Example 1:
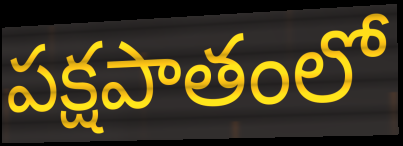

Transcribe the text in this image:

పక్షపాతంలో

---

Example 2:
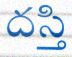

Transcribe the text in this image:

దస్తి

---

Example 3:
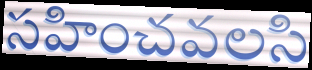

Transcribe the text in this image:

సహించవలసి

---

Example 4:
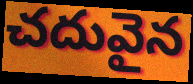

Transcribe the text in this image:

చదువైన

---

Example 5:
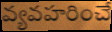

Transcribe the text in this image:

వ్యవహరించే